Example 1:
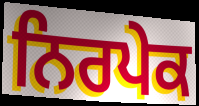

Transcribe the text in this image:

ਨਿਰਪੇਕ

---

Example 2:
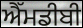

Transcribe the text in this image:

ਐੱਮਡੀਬੀ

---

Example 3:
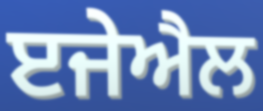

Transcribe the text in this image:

ੲਜੇਐਲ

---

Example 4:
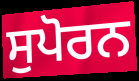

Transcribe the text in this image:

ਸੁਪੋਰਨ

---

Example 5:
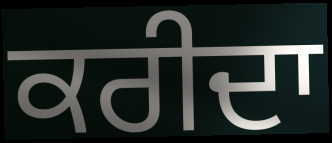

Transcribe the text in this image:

ਕਰੀਦਾ